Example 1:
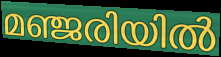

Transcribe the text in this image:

മഞ്ജരിയിൽ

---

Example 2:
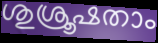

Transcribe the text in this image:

ശുശ്രൂഷതാം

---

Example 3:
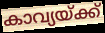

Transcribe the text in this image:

കാവ്യയ്ക്ക്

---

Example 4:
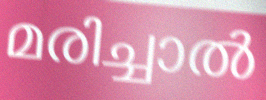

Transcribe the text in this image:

മരിച്ചാൽ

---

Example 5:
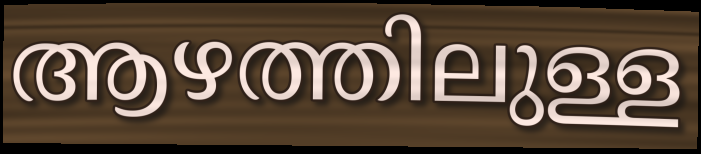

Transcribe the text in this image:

ആഴത്തിലുള്ള